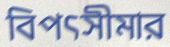
বিপৎসীমার